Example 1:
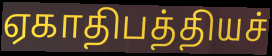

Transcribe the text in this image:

ஏகாதிபத்தியச்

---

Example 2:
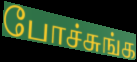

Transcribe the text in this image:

போச்சுங்க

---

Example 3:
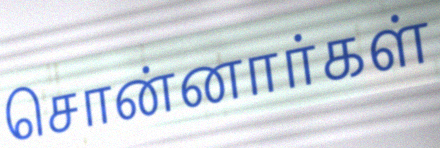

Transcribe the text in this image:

சொன்னார்கள்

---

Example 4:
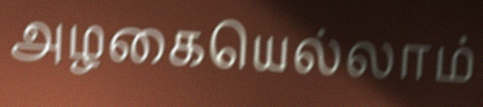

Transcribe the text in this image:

அழகையெல்லாம்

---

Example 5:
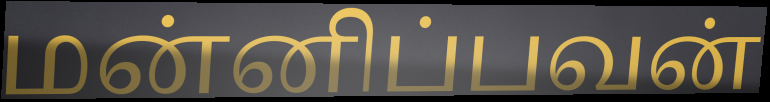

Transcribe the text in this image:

மன்னிப்பவன்